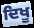
ਦਿਖੂ